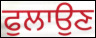
ਫੁਲਾਉਣ